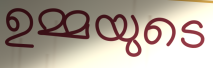
ഉമ്മയുടെ